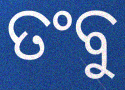
ତଂବୁ